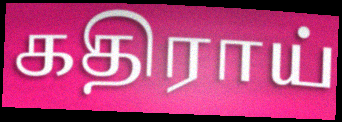
கதிராய்